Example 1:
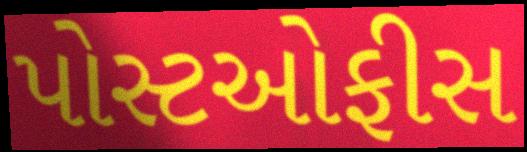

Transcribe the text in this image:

પોસ્ટઓફીસ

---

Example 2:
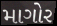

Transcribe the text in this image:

માગોર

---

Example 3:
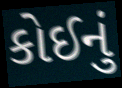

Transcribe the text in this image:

કોઈનું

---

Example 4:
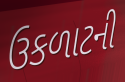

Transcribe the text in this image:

ઉકળાટની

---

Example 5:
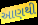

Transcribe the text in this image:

આણથી